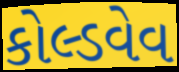
કોલ્ડવેવ